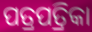
ପତ୍ରପତ୍ରିକା